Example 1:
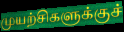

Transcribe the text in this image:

முயற்சிகளுக்குச்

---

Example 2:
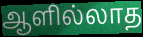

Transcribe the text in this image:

ஆளில்லாத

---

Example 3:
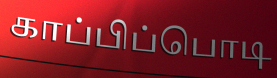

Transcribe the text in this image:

காப்பிப்பொடி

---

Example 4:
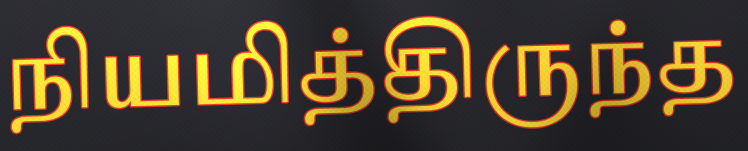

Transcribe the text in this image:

நியமித்திருந்த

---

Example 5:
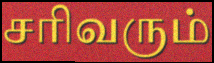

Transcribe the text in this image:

சரிவரும்